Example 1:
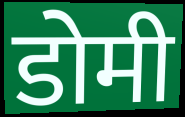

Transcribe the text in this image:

डोमी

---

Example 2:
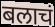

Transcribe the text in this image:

बलाचं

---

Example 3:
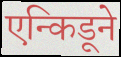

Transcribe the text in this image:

एन्किडूने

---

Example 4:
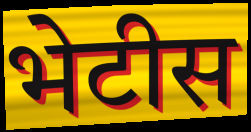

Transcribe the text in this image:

भेटीस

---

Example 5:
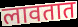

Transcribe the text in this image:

लावतात